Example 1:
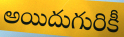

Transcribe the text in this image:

అయిదుగురికీ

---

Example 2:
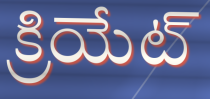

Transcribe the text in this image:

క్రియేట్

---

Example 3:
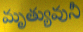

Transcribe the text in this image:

మృత్యువునీ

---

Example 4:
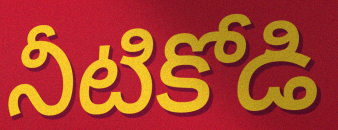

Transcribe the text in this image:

నీటికోడి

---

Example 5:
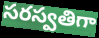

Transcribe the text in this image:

సరస్వతిగా